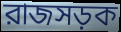
রাজসড়ক